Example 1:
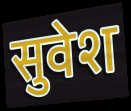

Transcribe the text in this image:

सुवेश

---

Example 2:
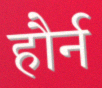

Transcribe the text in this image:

हौर्न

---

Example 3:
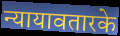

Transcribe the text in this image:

न्यायावतारके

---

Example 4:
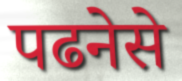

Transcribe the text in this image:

पढनेसे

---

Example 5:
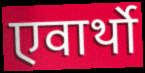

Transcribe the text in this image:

एवार्थो